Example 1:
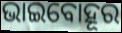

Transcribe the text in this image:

ଭାଇବୋହୂର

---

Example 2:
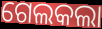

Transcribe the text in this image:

ଗେଲକଲା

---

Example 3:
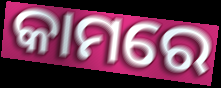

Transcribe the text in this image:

କାମରେ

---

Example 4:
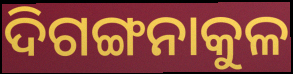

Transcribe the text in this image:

ଦିଗଙ୍ଗନାକୁଳ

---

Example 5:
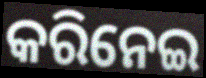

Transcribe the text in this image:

କରିନେଇ